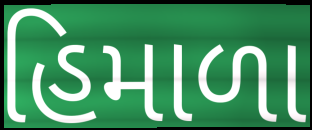
હિમાળા